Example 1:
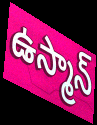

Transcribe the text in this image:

ఉస్మాన్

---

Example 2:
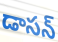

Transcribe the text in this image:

డాసన్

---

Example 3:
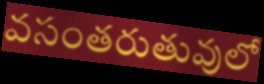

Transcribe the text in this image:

వసంతరుతువులో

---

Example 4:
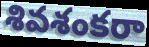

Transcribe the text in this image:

శివశంకరా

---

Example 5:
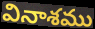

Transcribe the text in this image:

వినాశము